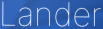
Lander